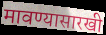
मावण्यासारखी